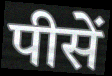
पीसें